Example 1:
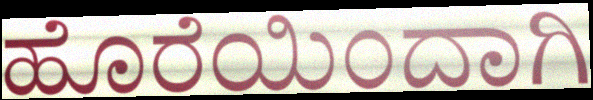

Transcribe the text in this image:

ಹೊರೆಯಿಂದಾಗಿ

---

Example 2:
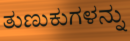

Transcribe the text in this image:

ತುಣುಕುಗಳನ್ನು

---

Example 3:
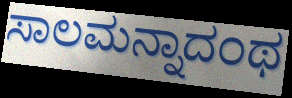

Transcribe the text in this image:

ಸಾಲಮನ್ನಾದಂಥ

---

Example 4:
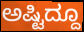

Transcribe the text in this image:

ಅಷ್ಟಿದ್ದೂ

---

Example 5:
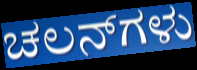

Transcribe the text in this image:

ಚಲನ್‌ಗಳು